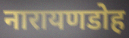
नारायणडोह